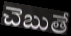
చెబుతే